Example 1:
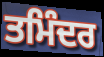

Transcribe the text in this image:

ਤਮਿੰਦਰ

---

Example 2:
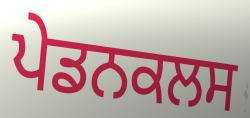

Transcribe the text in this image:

ਪੇਡਨਕਲਸ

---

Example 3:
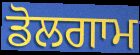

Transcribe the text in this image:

ਡੋਲਗਾਮ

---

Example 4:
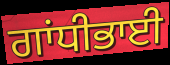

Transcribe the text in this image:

ਗਾਂਧੀਭਾਈ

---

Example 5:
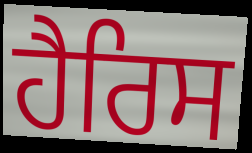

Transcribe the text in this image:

ਹੈਰਿਸ